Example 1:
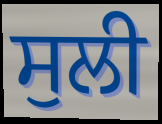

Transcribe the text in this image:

ਸੁਲੀ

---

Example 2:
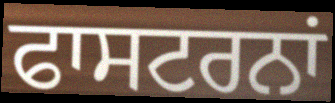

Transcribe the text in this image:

ਫਾਸਟਰਨਾਂ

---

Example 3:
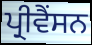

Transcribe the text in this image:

ਪ੍ਰੀਵੈਂਸਨ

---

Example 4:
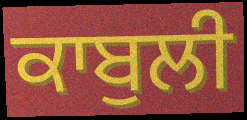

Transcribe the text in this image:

ਕਾਬੁਲੀ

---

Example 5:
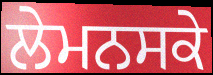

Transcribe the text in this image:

ਲੇਮਨਸਕੇ